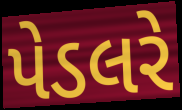
પેડલરે